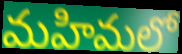
మహిమలో